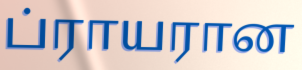
ப்ராயரான